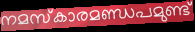
നമസ്കാരമണ്ഡപമുണ്ട്